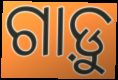
ଗାଡ଼ୁ